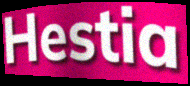
Hestia